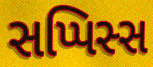
સપ્પિસ્સ